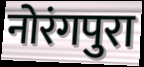
नोरंगपुरा